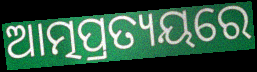
ଆତ୍ମପ୍ରତ୍ୟୟରେ